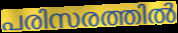
പരിസരത്തിൽ